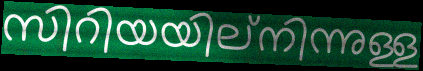
സിറിയയില്നിന്നുള്ള